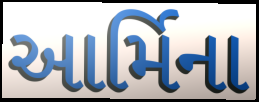
આર્મિના